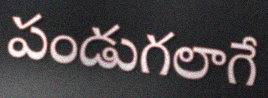
పండుగలాగే